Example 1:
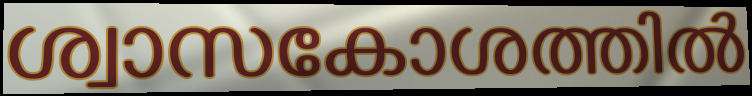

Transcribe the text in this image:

ശ്വാസകോശത്തിൽ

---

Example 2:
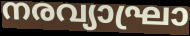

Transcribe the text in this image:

നരവ്യാഘ്രാ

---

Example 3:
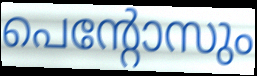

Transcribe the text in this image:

പെന്റോസും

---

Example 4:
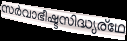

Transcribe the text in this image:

സർവാഭീഷ്ടസിദ്ധ്യര്ഥേ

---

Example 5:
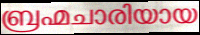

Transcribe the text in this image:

ബ്രഹ്മചാരിയായ